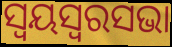
ସ୍ୱୟସ୍ୱରସଭା